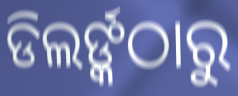
ଡିଲର୍ଙ୍କଠାରୁ